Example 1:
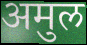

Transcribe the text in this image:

अमुल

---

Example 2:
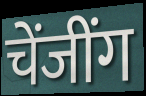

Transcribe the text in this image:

चेंजींग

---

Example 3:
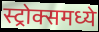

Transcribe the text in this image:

स्ट्रोक्समध्ये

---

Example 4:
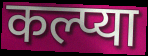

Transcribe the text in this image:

कल्प्या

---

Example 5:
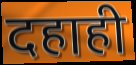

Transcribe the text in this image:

दहाही